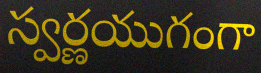
స్వర్ణయుగంగా